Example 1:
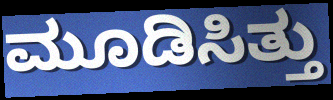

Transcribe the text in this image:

ಮೂಡಿಸಿತ್ತು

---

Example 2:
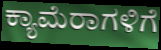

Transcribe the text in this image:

ಕ್ಯಾಮೆರಾಗಳಿಗೆ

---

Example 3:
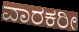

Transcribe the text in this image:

ವಾರಕರೀ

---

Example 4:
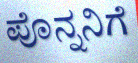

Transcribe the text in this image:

ಪೊನ್ನನಿಗೆ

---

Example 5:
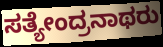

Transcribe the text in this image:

ಸತ್ಯೇಂದ್ರನಾಥರು